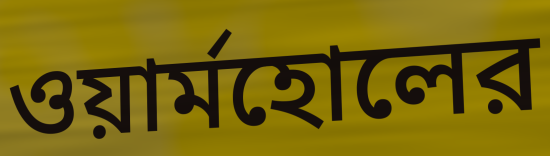
ওয়ার্মহোলের